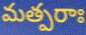
మత్పరాః